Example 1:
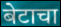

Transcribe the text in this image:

बेटाचा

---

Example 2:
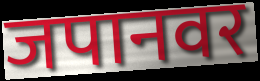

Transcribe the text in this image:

जपानवर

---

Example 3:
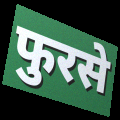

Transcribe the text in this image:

फुरसे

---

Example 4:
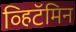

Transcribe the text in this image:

व्हिटॅमिन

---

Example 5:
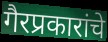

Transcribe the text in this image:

गैरप्रकारांचे